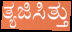
ತ್ಯಜಿಸಿತ್ತು